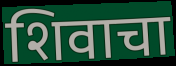
शिवाचा